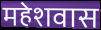
महेशवास